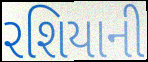
રશિયાની